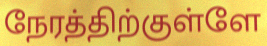
நேரத்திற்குள்ளே